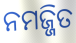
ନମଜ୍ଜିତ